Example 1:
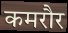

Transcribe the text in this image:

कमरौर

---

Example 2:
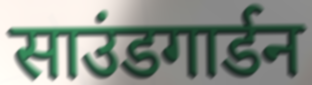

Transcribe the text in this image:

साउंडगार्डन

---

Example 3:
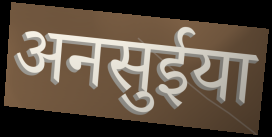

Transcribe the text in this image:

अनसुईया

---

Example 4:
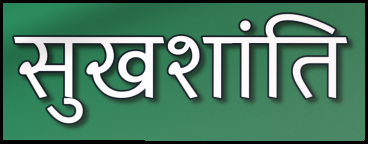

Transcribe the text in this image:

सुखशांति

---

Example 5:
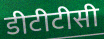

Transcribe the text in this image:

डीटीटीसी